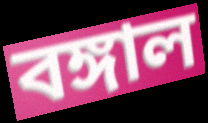
বঙ্গাল